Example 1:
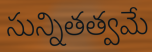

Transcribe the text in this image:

సున్నితత్వమే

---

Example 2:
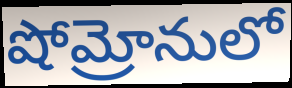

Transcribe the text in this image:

షోమ్రోనులో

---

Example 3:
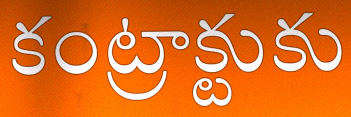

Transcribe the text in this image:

కంట్రాక్టుకు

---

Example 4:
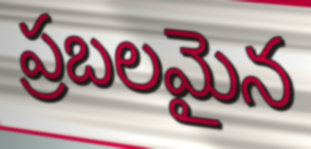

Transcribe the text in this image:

ప్రబలమైన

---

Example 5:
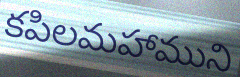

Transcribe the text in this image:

కపిలమహాముని